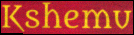
Kshemu